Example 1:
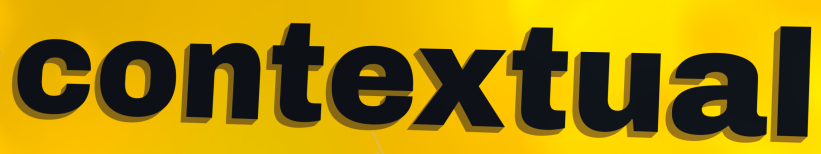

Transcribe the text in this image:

contextual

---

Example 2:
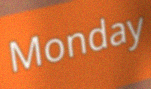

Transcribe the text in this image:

Monday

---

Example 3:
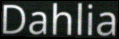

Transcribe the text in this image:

Dahlia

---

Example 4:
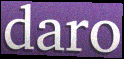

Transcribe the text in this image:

daro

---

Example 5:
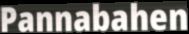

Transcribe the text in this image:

Pannabahen